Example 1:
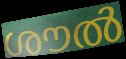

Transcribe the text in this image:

ശൗൽ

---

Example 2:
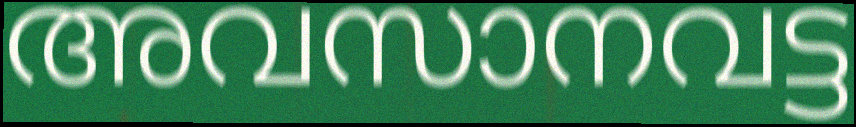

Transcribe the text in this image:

അവസാനവട്ട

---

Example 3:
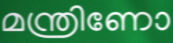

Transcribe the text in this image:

മന്ത്രിണോ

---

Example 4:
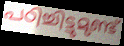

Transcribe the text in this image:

പഠിച്ചിട്ടുമുണ്ട്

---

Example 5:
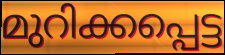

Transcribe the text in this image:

മുറിക്കപ്പെട്ട